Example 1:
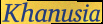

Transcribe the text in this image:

Khanusia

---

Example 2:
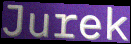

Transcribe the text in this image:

Jurek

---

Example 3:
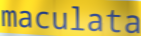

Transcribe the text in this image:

maculata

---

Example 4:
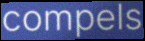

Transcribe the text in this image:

compels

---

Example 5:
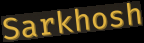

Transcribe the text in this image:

Sarkhosh